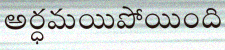
అర్ధమయిపోయింది